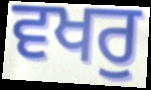
ਵਖਰੁ